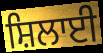
ਸ਼ਿਲਾਈ